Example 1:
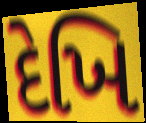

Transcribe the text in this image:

દેખિ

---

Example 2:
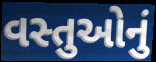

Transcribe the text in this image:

વસ્તુઓનું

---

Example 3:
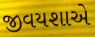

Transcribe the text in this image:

જીવયશાએ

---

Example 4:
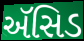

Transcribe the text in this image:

ઍસિડ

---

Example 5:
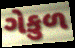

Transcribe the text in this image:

ગેકુળ